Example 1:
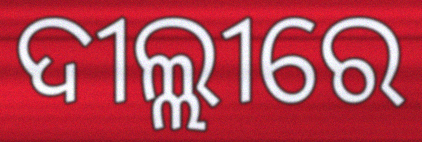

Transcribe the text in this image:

ଦୀଲ୍ଲୀରେ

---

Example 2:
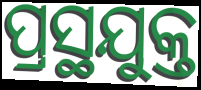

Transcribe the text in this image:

ପ୍ରସ୍ଥଯୁକ୍ତ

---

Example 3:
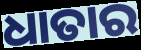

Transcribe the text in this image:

ଧାତାର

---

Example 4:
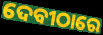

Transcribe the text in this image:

ଦେବୀଠାରେ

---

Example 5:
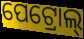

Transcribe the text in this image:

ପେଟ୍ରୋଲ୍